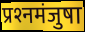
प्रश्नमंजुषा